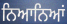
ਨਿਆਨਿਆਂ